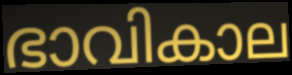
ഭാവികാല